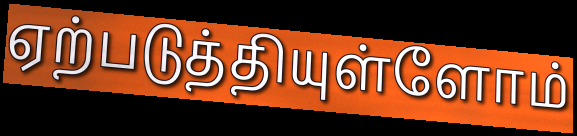
ஏற்படுத்தியுள்ளோம்